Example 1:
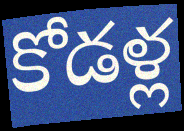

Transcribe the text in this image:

కోడళ్ల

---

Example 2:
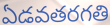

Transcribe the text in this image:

ఏడవతరగతి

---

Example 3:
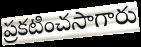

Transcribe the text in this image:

ప్రకటించసాగారు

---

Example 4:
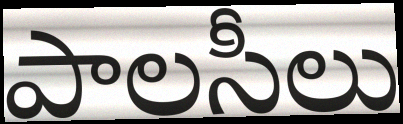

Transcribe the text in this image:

పాలసీలు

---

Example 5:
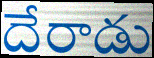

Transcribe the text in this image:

దేరాడు